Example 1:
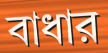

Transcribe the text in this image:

বাধার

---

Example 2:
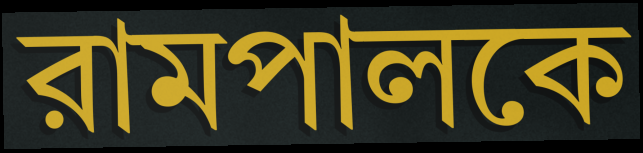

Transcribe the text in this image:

রামপালকে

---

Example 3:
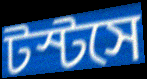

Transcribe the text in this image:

টস্টসে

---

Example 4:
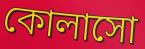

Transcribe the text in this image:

কোলাসো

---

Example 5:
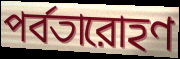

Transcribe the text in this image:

পর্বতারোহণ